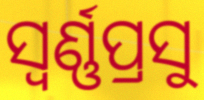
ସ୍ୱର୍ଣ୍ଣପ୍ରସୁ